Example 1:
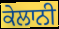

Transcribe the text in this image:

ਕੇਲਾਨੀ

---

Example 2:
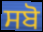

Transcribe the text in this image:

ਸਬੋ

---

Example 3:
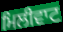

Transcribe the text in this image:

ਮਿਲੀਵਾਟ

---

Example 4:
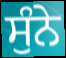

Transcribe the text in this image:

ਸੁੰਨੇ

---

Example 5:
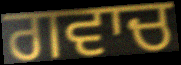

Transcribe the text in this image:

ਗਵਾਚ